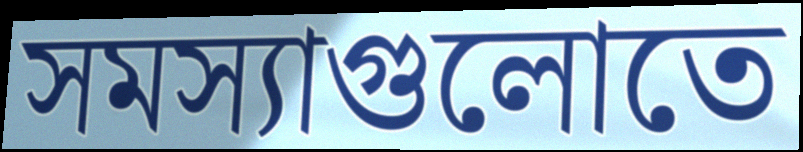
সমস্যাগুলোতে